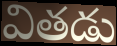
వితడు